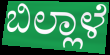
ಬಿಲ್ಲಾಳೆ